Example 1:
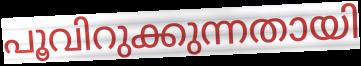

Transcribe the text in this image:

പൂവിറുക്കുന്നതായി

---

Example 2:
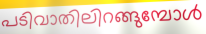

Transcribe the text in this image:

പടിവാതിലിറങ്ങുമ്പോൾ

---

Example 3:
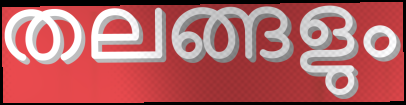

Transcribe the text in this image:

തലങ്ങളും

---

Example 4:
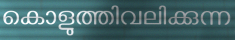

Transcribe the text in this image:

കൊളുത്തിവലിക്കുന്ന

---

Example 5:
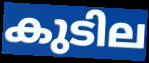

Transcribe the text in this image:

കുടില